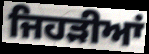
ਜਿਹੜੀਆਂ